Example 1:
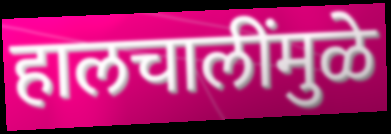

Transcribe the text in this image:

हालचालींमुळे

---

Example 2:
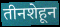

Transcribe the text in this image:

तीनशेहून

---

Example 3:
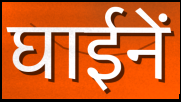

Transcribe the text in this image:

घाईनें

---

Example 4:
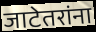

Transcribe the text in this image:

जाटेतरांना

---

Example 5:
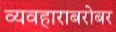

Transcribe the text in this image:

व्यवहाराबरोबर